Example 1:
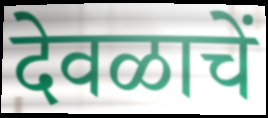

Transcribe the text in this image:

देवळाचें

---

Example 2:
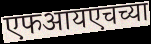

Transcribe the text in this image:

एफआयएचच्या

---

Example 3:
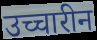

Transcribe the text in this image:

उच्चारीन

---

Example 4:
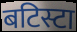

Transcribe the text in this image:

बटिस्टा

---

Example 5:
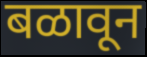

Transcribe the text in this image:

बळावून